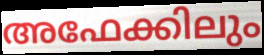
അഫേക്കിലും